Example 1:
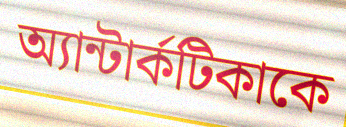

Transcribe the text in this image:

অ্যান্টার্কটিকাকে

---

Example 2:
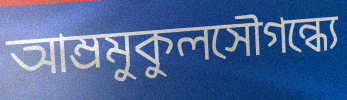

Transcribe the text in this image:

আম্রমুকুলসৌগন্ধ্যে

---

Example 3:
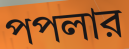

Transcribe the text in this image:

পপলার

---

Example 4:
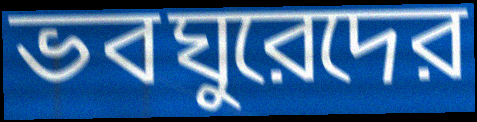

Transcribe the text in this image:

ভবঘুরেদের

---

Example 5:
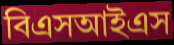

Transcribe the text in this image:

বিএসআইএস